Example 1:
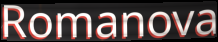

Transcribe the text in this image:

Romanova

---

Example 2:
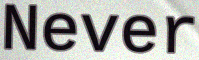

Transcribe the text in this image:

Never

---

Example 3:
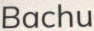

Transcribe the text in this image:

Bachu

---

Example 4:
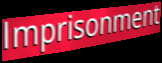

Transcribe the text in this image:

Imprisonment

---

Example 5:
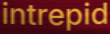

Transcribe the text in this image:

intrepid